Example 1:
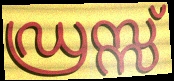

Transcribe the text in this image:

ഡ്രസ്സ്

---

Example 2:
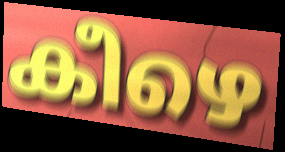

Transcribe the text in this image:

കീഴെ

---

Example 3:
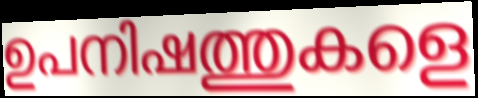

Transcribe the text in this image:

ഉപനിഷത്തുകളെ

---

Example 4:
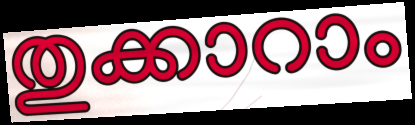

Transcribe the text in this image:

തുക്കാറാം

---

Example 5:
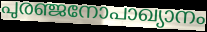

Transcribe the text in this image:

പുരഞ്ജനോപാഖ്യാനം